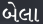
બેલા